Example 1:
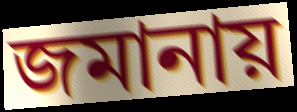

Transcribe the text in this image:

জমানায়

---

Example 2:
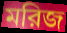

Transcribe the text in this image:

মরিজ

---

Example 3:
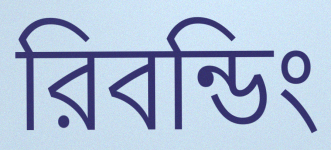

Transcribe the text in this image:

রিবন্ডিং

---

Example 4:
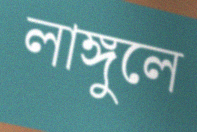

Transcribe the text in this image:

লাঙ্গুলে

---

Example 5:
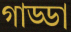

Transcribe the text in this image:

গাড্ডা